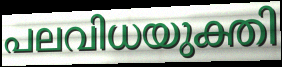
പലവിധയുക്തി